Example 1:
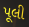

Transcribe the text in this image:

પૂલી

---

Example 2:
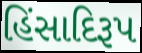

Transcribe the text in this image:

હિંસાદિરૂપ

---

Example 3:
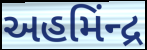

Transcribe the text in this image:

અહમિંન્દ્ર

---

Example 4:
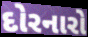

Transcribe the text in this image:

દોરનારો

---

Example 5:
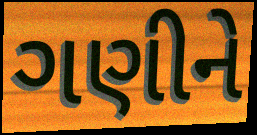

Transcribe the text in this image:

ગણીને